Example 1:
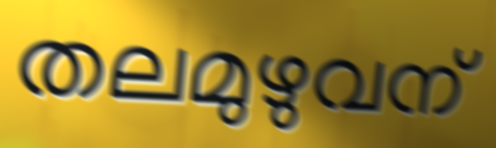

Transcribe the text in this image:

തലമുഴുവന്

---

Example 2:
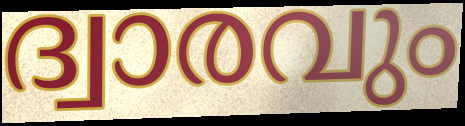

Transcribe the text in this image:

ദ്വാരവും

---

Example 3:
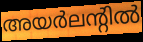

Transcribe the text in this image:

അയർലന്റിൽ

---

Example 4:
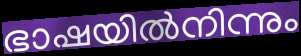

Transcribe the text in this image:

ഭാഷയിൽനിന്നും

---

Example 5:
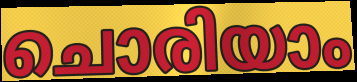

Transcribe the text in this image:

ചൊരിയാം